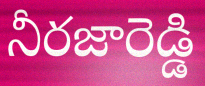
నీరజారెడ్డి